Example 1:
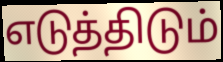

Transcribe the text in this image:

எடுத்திடும்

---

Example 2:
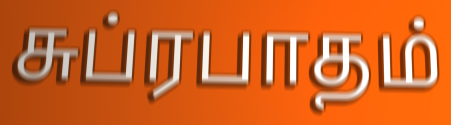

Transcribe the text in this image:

சுப்ரபாதம்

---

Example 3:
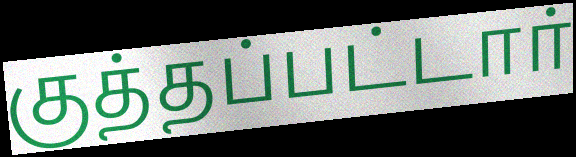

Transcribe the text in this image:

குத்தப்பட்டார்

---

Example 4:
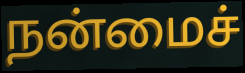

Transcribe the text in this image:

நன்மைச்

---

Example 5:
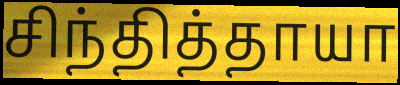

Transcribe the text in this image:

சிந்தித்தாயா